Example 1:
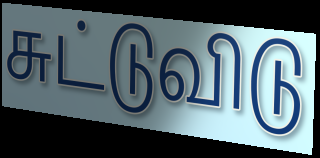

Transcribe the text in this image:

சுட்டுவிடு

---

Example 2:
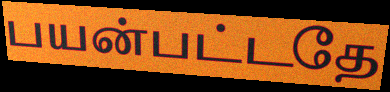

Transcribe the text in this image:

பயன்பட்டதே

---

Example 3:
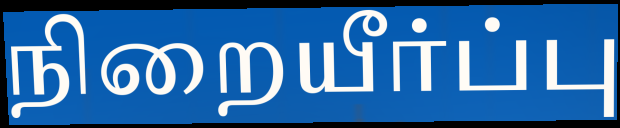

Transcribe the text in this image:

நிறையீர்ப்பு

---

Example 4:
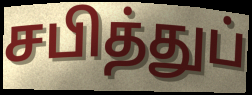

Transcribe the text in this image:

சபித்துப்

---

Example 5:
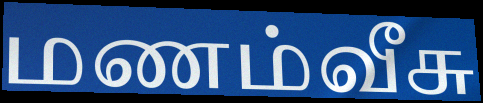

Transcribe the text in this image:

மணம்வீசு